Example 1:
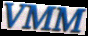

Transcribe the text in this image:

VMM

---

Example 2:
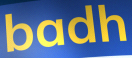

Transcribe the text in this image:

badh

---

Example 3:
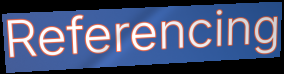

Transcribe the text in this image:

Referencing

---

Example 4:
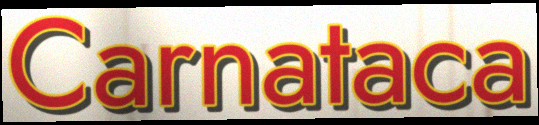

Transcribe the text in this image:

Carnataca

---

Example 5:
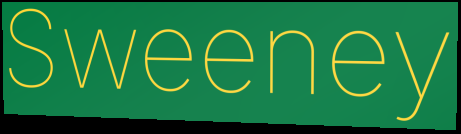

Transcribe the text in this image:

Sweeney